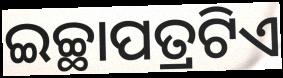
ଇଚ୍ଛାପତ୍ରଟିଏ